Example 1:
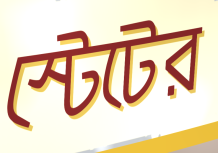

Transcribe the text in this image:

স্টেটের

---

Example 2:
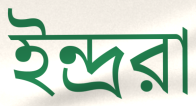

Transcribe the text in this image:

ইন্দ্ররা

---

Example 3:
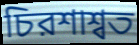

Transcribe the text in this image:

চিরশাশ্বত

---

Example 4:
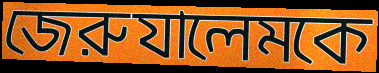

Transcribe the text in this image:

জেরুযালেমকে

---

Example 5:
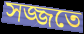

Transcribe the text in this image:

সজ্জতে